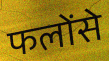
फलोंसे